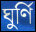
ঘুর্ণি